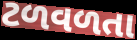
ટળવળતા